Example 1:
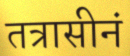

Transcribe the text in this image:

तत्रासीनं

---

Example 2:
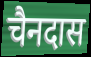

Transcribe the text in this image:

चैनदास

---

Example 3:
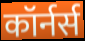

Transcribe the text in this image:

कॉर्नर्स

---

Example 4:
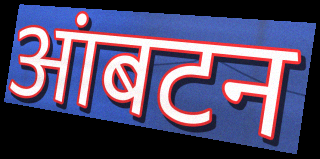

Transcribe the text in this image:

आंबटन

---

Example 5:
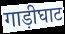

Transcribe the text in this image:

गाड़ीघाट